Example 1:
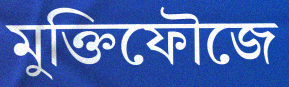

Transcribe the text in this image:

মুক্তিফৌজে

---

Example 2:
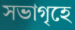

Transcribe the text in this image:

সভাগৃহে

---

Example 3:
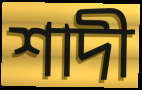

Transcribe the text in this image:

শাদী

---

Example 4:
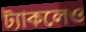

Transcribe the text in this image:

ট্যাকলেও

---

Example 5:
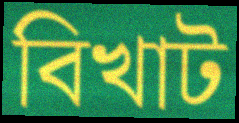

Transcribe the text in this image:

বিখাট